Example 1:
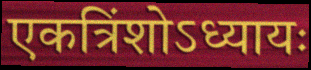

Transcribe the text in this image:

एकत्रिंशोऽध्यायः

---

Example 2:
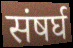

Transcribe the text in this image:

संषर्घ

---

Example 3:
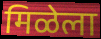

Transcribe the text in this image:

मिळेला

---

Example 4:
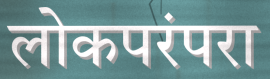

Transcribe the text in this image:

लोकपरंपरा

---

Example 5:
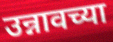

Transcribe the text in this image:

उन्नावच्या